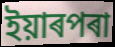
ইয়াৰপৰা